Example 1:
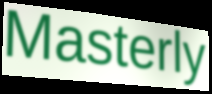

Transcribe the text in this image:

Masterly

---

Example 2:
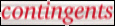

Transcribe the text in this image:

contingents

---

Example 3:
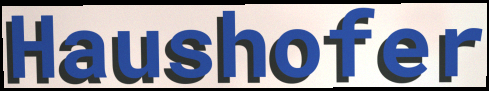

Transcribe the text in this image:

Haushofer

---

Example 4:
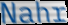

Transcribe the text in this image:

Nahr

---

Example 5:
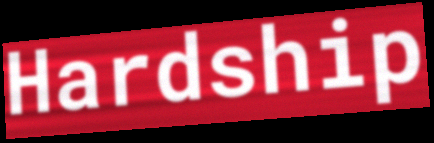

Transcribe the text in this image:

Hardship